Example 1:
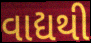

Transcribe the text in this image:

વાદ્યથી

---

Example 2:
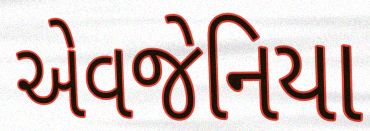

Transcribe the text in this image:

એવજેનિયા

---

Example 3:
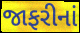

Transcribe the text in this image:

જાફરીનાં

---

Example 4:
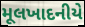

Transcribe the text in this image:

મૂલખાદનીયે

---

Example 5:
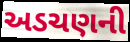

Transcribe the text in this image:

અડચણની